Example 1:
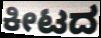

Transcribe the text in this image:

ಕೀಟದ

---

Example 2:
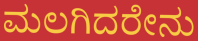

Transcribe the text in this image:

ಮಲಗಿದರೇನು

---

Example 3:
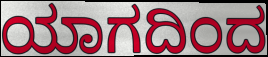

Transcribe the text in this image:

ಯಾಗದಿಂದ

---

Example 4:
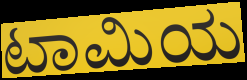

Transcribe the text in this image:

ಟಾಮಿಯ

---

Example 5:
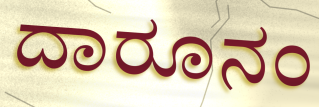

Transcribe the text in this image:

ದಾರೂನಂ